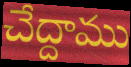
చేద్దాము